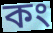
কং